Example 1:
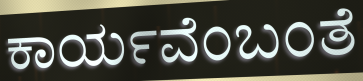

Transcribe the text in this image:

ಕಾರ್ಯವೆಂಬಂತೆ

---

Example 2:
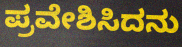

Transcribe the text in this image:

ಪ್ರವೇಶಿಸಿದನು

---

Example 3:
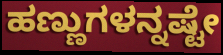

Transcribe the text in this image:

ಹಣ್ಣುಗಳನ್ನಷ್ಟೇ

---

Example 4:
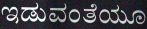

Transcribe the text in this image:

ಇಡುವಂತೆಯೂ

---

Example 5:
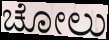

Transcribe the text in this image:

ಚೋಲು